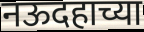
नऊदहाच्या